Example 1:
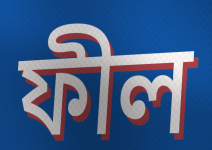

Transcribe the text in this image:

ফীল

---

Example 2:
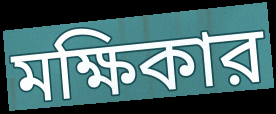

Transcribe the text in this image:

মক্ষিকার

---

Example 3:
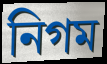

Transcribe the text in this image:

নিগম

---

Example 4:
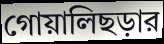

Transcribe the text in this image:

গোয়ালিছড়ার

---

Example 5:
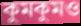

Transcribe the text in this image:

কুমকুমও